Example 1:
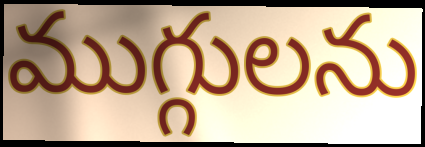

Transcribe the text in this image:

ముగ్గులను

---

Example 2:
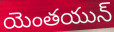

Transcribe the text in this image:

యెంతయున్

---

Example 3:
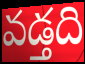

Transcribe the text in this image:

వడ్తది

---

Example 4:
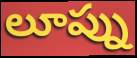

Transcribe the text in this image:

లూప్ను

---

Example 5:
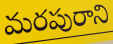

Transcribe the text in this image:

మరపురాని